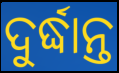
ଦୁର୍ଦ୍ଧାନ୍ତ